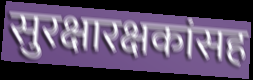
सुरक्षारक्षकांसह